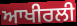
ਆਖੀਰਲੀ